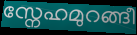
സ്നേഹമുറങ്ങീ